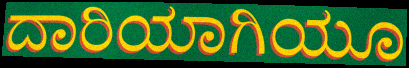
ದಾರಿಯಾಗಿಯೂ